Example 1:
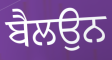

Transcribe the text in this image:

ਬੈਲਉਨ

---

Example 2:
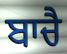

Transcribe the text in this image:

ਬਾਚੈ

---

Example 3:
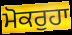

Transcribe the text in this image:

ਮੋਕਰੁਹਾ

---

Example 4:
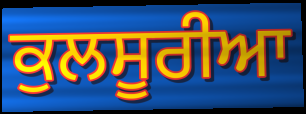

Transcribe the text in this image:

ਕੁਲਸੂਰੀਆ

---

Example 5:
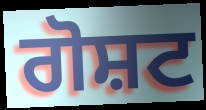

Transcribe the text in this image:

ਗੋਸ਼ਟ